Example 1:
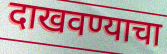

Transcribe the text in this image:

दाखवण्याचा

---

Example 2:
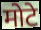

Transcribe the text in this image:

मोटे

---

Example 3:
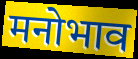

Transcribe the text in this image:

मनोभाव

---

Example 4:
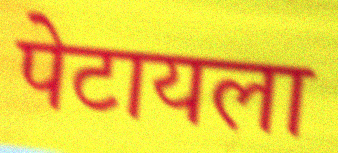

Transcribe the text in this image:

पेटायला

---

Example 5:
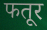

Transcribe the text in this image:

फतूर